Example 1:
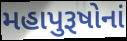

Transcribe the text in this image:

મહાપુરૂષોનાં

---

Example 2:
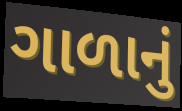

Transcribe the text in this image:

ગાળાનું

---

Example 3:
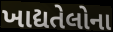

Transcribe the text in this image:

ખાદ્યતેલોના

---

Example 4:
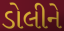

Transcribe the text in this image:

ડોલીને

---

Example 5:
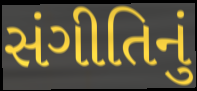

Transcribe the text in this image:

સંગીતિનું